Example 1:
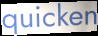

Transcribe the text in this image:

quicken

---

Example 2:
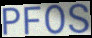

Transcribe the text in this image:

PFOS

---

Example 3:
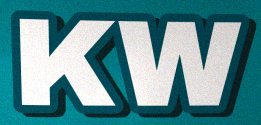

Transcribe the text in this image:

KW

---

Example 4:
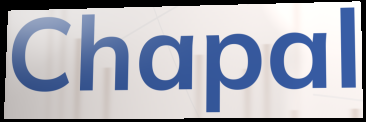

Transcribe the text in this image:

Chapal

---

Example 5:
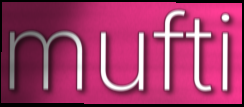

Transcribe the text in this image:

mufti